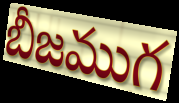
బీజముగ